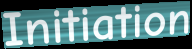
Initiation